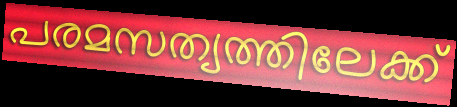
പരമസത്യത്തിലേക്ക്